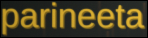
parineeta